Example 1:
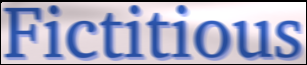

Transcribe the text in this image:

Fictitious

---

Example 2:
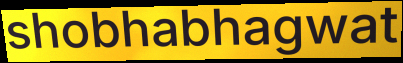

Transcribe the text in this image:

shobhabhagwat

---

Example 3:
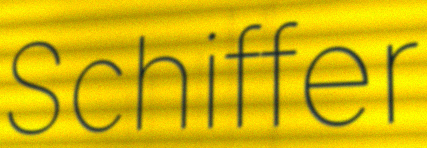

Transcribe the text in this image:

Schiffer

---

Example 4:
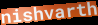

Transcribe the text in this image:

nishvarth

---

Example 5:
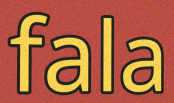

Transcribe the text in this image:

fala